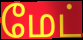
மேட்